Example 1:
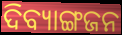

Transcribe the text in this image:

ଦିବ୍ୟାଙ୍ଗଜନ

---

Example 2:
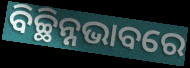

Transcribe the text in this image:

ବିଚ୍ଛିନ୍ନଭାବରେ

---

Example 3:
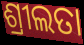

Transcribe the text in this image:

ଶ୍ରୀଲତା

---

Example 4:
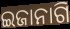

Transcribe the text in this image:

ଇଜାନାଗି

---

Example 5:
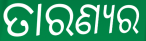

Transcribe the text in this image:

ତାରଣ୍ୟର